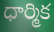
ధార్మిక